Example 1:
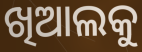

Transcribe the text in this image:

ଖିଆଲକୁ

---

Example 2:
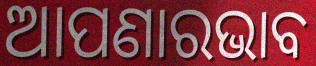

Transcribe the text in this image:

ଆପଣାରଭାବ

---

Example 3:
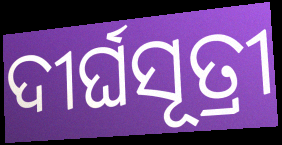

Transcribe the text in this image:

ଦୀର୍ଘସୂତ୍ରୀ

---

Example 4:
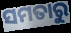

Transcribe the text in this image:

ସମତାରୁ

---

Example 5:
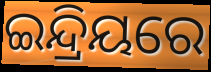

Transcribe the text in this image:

ଇନ୍ଦ୍ରିୟରେ